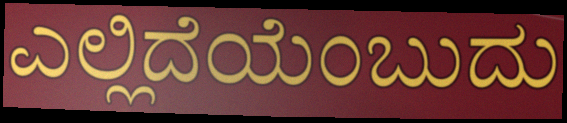
ಎಲ್ಲಿದೆಯೆಂಬುದು